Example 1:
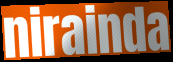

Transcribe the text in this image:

nirainda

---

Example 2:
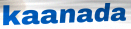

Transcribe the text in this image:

kaanada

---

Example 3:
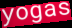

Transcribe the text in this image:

yogas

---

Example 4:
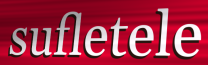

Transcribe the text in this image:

sufletele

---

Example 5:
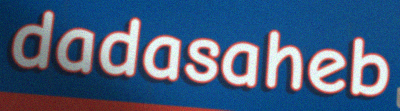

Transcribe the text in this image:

dadasaheb